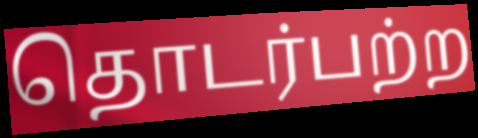
தொடர்பற்ற